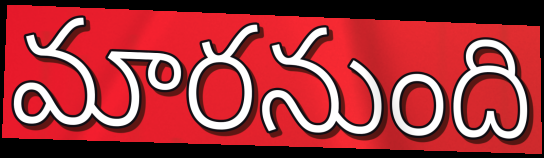
మారనుంది